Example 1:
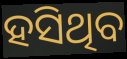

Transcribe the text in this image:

ହସିଥିବ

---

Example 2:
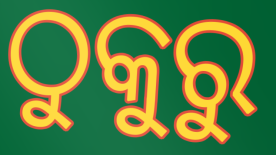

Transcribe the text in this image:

ଠୁକୁରୁ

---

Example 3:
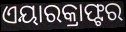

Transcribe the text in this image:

ଏୟାରକ୍ରାଫ୍ଟର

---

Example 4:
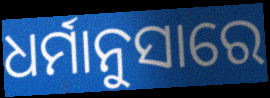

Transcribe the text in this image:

ଧର୍ମାନୁସାରେ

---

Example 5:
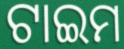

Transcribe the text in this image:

ଟାଇମ